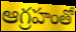
ఆగ్రహంతో